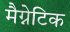
मैग्नेटिक